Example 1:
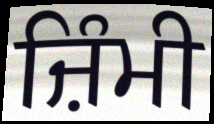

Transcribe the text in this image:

ਜ਼ਿੰਮੀ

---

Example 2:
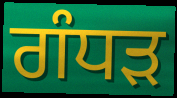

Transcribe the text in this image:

ਗੰਧੜ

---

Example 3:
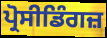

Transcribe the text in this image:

ਪ੍ਰੋਸੀਡਿੰਗਜ਼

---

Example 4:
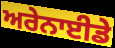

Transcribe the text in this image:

ਅਰੇਨਾਈਡੇ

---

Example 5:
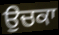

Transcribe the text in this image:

ਉਚਕਾ